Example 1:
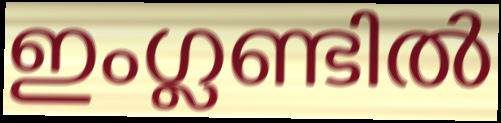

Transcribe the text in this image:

ഇംഗ്ലണ്ടിൽ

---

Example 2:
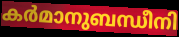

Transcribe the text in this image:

കർമാനുബന്ധീനി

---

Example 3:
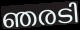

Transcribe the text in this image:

ഞരടി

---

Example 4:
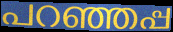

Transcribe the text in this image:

പറഞ്ഞപ്പ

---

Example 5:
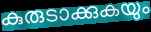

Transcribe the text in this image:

കുരുടാക്കുകയും